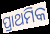
ପ୍ରାଥମିକ